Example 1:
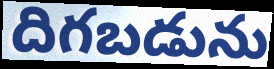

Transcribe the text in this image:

దిగబడును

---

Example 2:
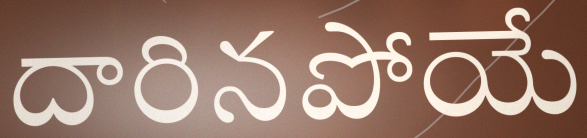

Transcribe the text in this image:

దారినపోయే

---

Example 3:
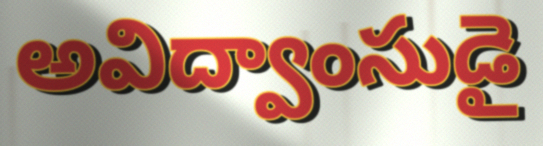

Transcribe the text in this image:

అవిద్వాంసుడై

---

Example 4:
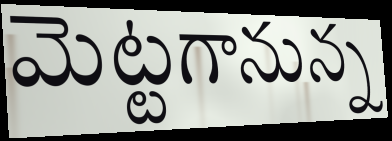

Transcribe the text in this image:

మెట్టగానున్న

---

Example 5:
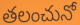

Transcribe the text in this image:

తలంచునో